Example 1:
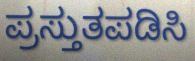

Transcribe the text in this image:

ಪ್ರಸ್ತುತಪಡಿಸಿ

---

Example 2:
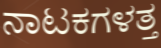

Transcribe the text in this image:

ನಾಟಕಗಳತ್ತ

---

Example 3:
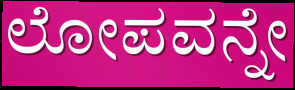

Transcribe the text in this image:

ಲೋಪವನ್ನೇ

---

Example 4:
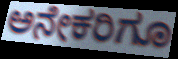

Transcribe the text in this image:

ಅನೇಕರಿಗೂ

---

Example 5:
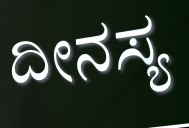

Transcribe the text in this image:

ದೀನಸ್ಯ